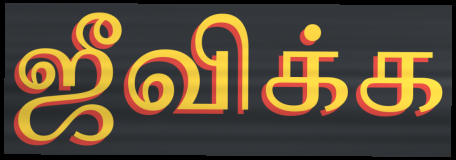
ஜீவிக்க